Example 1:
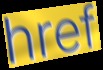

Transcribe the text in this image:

href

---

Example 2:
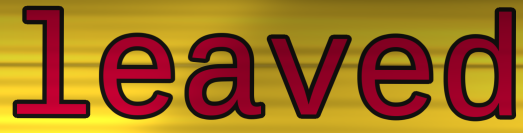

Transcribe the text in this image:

leaved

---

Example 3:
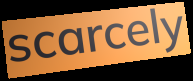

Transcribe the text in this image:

scarcely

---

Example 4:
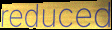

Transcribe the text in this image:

reduced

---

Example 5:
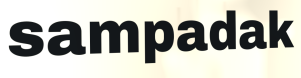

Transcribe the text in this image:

sampadak